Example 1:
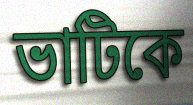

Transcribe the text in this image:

ভাটিকে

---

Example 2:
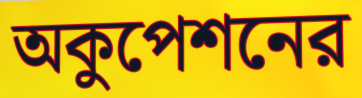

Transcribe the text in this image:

অকুপেশনের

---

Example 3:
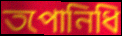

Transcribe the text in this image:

তপোনিধি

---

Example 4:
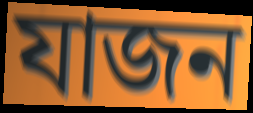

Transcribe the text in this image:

যাজন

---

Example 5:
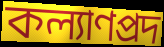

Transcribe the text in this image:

কল্যাণপ্রদ